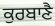
ਕੁਰਬਾਣੈ